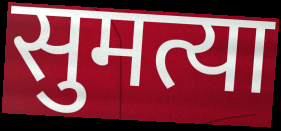
सुमत्या